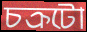
চক্ৰটো